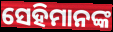
ସେହିମାନଙ୍କ